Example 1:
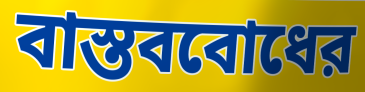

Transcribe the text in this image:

বাস্তববোধের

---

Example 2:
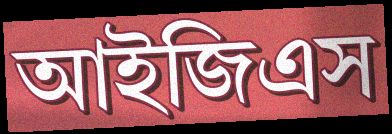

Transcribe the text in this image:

আইজিএস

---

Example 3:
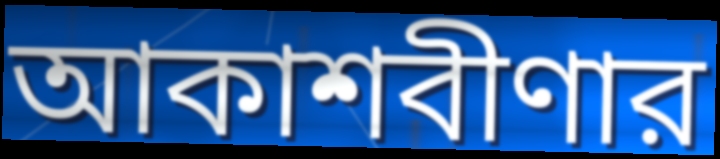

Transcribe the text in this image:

আকাশবীণার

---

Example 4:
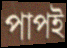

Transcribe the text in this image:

পাপই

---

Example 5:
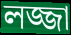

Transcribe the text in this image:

লজ্জা